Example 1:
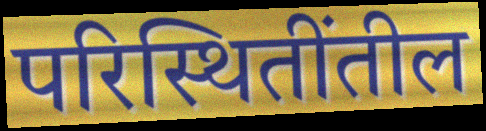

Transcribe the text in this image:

परिस्थितींतील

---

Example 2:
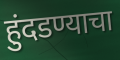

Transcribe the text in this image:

हुंदडण्याचा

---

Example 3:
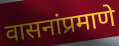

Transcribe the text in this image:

वासनांप्रमाणे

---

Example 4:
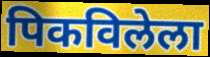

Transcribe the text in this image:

पिकविलेला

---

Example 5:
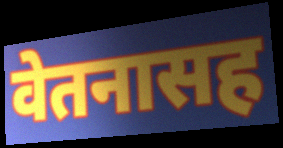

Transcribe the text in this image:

वेतनासह